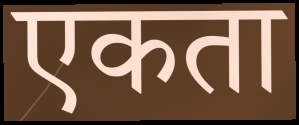
एकता